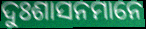
ଦୁଃଶାସନମାନେ